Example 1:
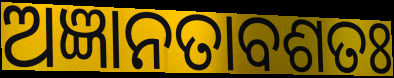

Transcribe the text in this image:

ଅଜ୍ଞାନତାବଶତଃ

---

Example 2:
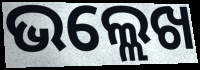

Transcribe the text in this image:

ଭଲ୍ଲେଖ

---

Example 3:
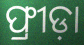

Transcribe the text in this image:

ଫ୍ରୀଡ଼ା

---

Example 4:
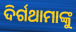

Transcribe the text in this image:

ଦିର୍ଗଥାମାଙ୍କୁ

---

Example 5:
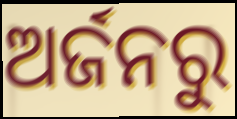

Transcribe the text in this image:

ଅର୍ଜନରୁ